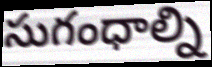
సుగంధాల్ని